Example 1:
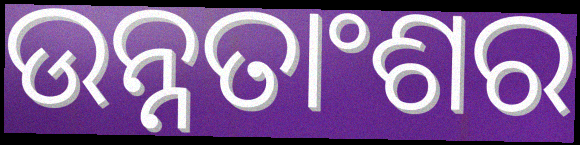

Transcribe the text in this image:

ଉନ୍ନତାଂଶର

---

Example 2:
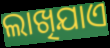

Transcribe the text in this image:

ଲାଖିଯାଏ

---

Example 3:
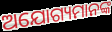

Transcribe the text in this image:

ଅଯୋଗ୍ୟମାନଙ୍କ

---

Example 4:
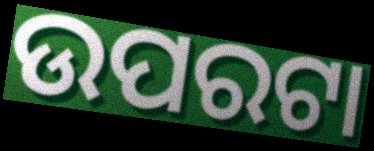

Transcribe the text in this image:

ଉପରଟା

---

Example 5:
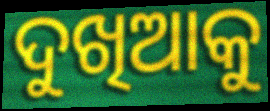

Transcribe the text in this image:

ଦୁଖିଆକୁ